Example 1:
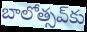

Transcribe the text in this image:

బాలోత్సవ్‌కు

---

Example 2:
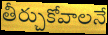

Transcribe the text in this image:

తీర్చుకోవాలనే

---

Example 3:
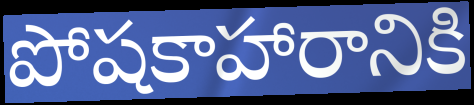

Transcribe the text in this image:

పోషకాహారానికి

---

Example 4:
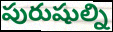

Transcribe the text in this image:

పురుషుల్ని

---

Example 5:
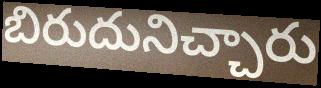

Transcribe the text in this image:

బిరుదునిచ్చారు